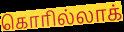
கொரில்லாக்